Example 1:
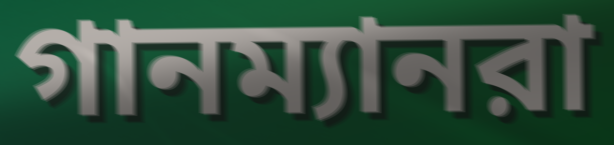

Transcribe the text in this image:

গানম্যানরা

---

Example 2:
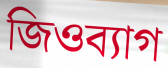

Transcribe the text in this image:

জিওব্যাগ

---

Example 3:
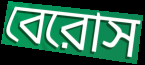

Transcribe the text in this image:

বেরোস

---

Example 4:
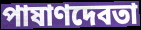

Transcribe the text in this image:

পাষাণদেবতা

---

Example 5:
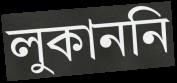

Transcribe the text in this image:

লুকাননি